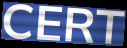
CERT